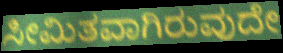
ಸೀಮಿತವಾಗಿರುವುದೇ